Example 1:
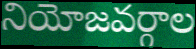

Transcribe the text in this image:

నియోజవర్గాల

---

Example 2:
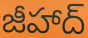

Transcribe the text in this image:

జీహాద్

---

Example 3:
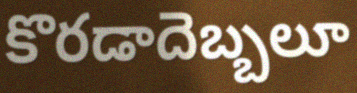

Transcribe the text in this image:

కొరడాదెబ్బలూ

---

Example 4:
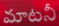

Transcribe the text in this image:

మాటనీ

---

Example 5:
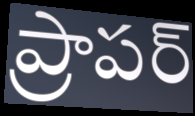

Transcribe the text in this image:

ప్రాపర్